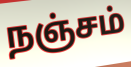
நஞ்சம்